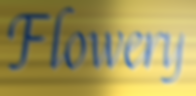
Flowery